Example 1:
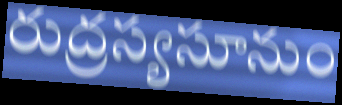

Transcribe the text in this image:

రుద్రస్యసూనుం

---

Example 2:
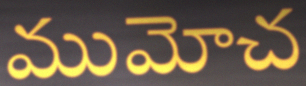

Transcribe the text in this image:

ముమోచ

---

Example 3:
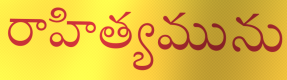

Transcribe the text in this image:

రాహిత్యమును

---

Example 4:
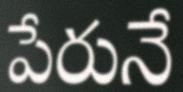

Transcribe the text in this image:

పేరునే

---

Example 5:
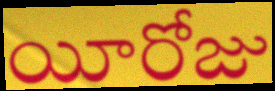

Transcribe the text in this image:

యీరోజు